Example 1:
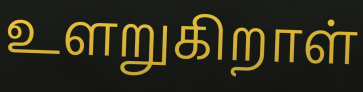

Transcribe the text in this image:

உளறுகிறாள்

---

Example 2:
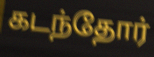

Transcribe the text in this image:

கடந்தோர்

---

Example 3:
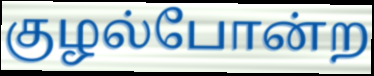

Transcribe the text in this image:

குழல்போன்ற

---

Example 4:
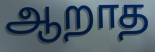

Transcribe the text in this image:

ஆறாத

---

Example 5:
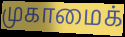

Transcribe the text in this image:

முகாமைக்